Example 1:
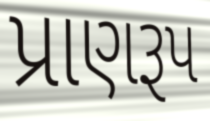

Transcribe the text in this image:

પ્રાણરૂપ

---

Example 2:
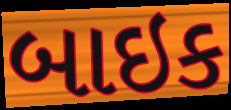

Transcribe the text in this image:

બાઇક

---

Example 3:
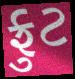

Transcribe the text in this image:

ફ્રુટ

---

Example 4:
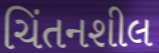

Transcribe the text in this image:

ચિંતનશીલ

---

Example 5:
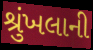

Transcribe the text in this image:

શ્રુંખલાની